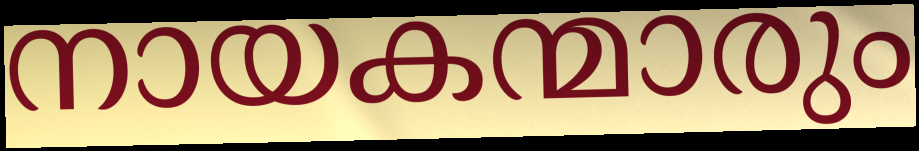
നായകന്മാരും